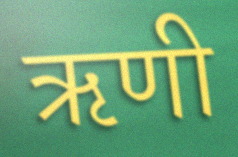
ऋणी